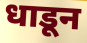
धाडून